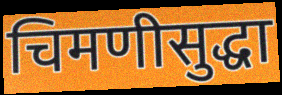
चिमणीसुद्धा